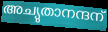
അച്യുതാനന്ദന്